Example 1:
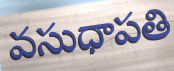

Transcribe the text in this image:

వసుధాపతి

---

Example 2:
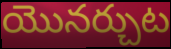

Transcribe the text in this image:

యొనర్చుట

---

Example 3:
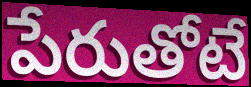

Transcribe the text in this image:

పేరుతోటే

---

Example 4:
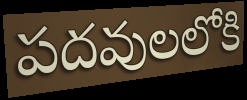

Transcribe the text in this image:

పదవులలోకి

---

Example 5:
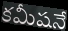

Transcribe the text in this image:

కమీషనే